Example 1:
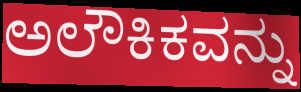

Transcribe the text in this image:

ಅಲೌಕಿಕವನ್ನು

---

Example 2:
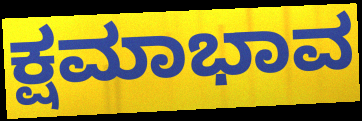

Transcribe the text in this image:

ಕ್ಷಮಾಭಾವ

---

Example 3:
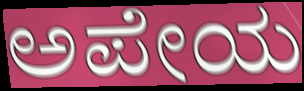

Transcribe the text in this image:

ಅಪೇಯ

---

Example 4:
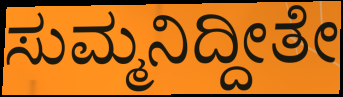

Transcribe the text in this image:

ಸುಮ್ಮನಿದ್ದೀತೇ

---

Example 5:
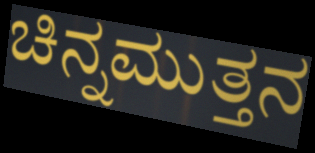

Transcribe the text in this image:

ಚಿನ್ನಮುತ್ತನ